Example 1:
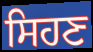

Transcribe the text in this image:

ਸਿਹਣ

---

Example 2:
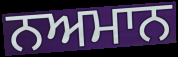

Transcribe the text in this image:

ਨਅਮਾਨ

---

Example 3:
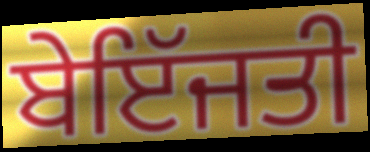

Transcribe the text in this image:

ਬੇਇੱਜਤੀ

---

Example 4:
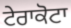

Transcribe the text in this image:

ਟੇਰਾਕੋਟਾ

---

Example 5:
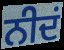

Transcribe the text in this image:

ਨੀਦਂ